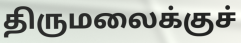
திருமலைக்குச்